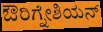
ಔರಿಗ್ನೇಶಿಯನ್